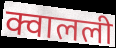
क्वालली